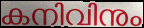
കനിവിനും